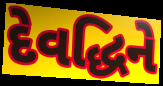
દેવદ્ધિને